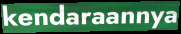
kendaraannya